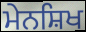
ਮੇਨਸ਼ਿਖ